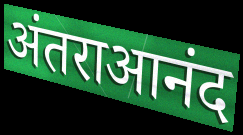
अंतराआनंद